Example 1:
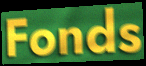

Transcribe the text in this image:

Fonds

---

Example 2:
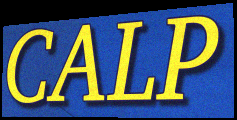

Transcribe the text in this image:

CALP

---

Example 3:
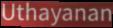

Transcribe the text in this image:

Uthayanan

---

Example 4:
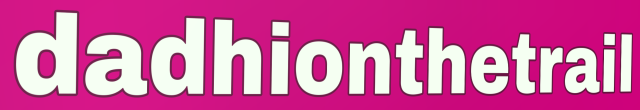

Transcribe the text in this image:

dadhionthetrail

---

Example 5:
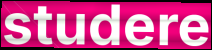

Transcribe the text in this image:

studere